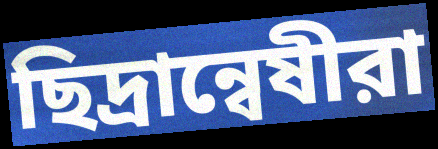
ছিদ্রান্বেষীরা